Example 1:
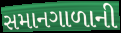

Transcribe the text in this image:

સમાનગાળાની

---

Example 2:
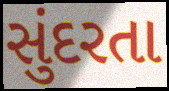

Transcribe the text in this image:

સુંદરતા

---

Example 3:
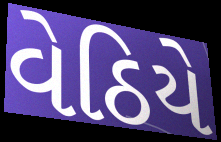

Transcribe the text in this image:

વેઠિયે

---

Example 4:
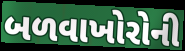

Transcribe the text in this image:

બળવાખોરોની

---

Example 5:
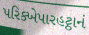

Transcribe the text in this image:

પરિક્ખેપારહટ્ઠાનં